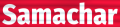
Samachar